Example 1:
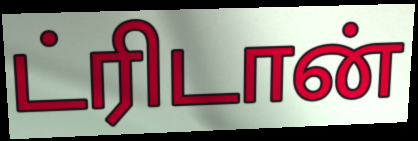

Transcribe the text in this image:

ட்ரிடான்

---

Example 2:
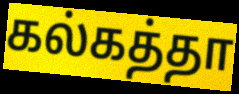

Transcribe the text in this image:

கல்கத்தா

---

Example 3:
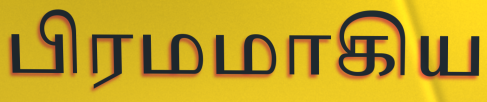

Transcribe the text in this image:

பிரமமாகிய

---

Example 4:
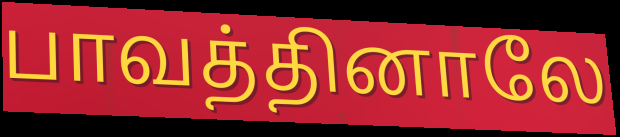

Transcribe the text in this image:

பாவத்தினாலே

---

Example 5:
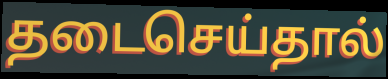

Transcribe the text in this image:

தடைசெய்தால்